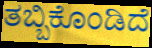
ತಬ್ಬಿಕೊಂಡಿದೆ